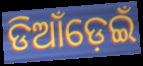
ଡିଆଁଡ଼େଇଁ